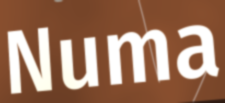
Numa